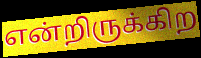
என்றிருக்கிற